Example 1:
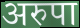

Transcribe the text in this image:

अरुपा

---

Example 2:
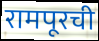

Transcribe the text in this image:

रामपूरची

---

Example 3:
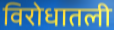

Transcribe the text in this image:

विरोधातली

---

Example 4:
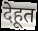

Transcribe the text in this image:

देहूत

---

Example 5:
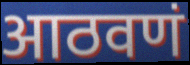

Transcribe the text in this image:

आठवणं